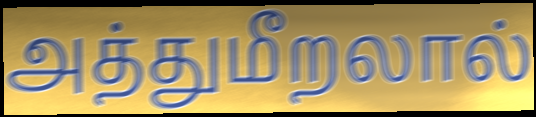
அத்துமீறலால்